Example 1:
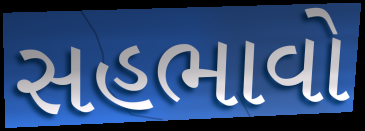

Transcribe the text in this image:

સહભાવો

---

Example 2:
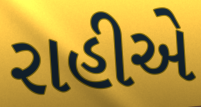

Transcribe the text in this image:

રાહીએ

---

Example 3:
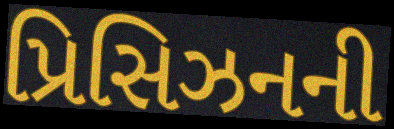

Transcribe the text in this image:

પ્રિસિઝનની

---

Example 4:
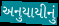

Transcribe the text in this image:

અનુયાયીનું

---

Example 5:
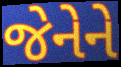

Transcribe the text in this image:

જેનેને